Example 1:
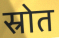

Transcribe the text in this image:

स्रोत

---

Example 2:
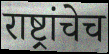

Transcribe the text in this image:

राष्ट्रांचेच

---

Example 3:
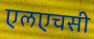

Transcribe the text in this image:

एलएचसी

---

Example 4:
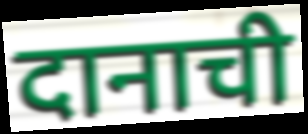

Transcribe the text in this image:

दानाची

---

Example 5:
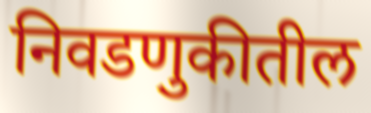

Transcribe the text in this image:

निवडणुकीतील